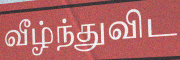
வீழ்ந்துவிட